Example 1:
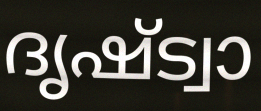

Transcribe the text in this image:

ദൃഷ്ട്വാ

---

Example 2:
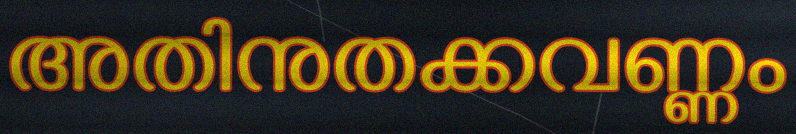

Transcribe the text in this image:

അതിനുതക്കവണ്ണം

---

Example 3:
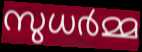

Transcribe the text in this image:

സുധർമ്മ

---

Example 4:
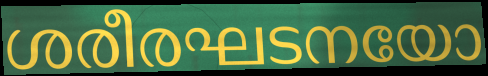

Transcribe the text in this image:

ശരീരഘടനയോ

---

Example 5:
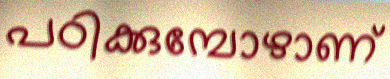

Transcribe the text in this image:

പഠിക്കുമ്പോഴാണ്